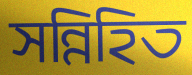
সন্নিহিত